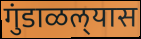
गुंडाळल्यास